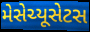
મેસેચ્યૂસેટસ